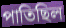
পাতিছিল